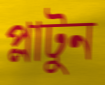
প্লাটুন